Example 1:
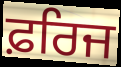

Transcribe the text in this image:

ਫ਼ਰਿਜ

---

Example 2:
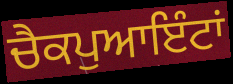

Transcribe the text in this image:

ਚੈਕਪੁਆਇੰਟਾਂ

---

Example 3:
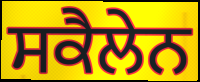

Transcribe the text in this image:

ਸਕੈਲੇਨ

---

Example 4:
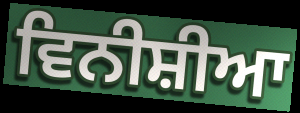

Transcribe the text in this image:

ਵਿਨੀਸ਼ੀਆ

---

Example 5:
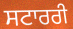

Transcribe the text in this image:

ਸਟਾਰਰੀ